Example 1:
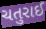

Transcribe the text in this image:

ચતુરાઈ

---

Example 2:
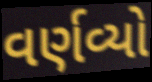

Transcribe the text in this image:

વર્ણવ્યો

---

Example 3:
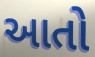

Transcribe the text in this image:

આતો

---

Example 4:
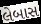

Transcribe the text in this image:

લેબાસ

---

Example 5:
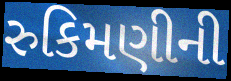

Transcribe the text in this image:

રુકિમણીની